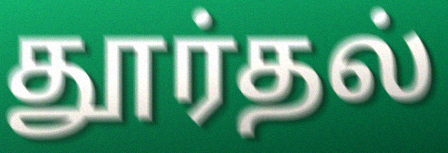
தூர்தல்